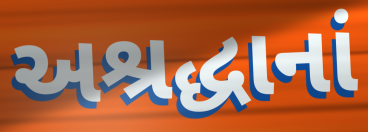
અશ્રદ્ધાનાં